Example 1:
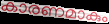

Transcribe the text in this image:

കാരണമാകും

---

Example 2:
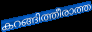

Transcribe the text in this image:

കറങ്ങിത്തീരാത്ത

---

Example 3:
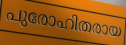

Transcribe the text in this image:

പുരോഹിതരായ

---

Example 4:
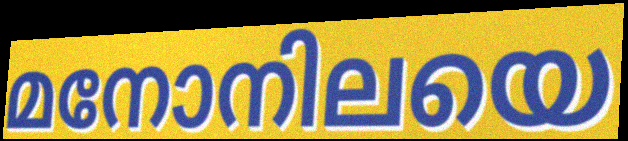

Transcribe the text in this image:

മനോനിലയെ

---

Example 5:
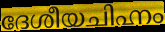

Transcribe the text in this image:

ദേശീയചിഹ്നം